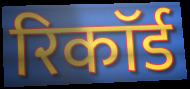
रिकॉर्ड